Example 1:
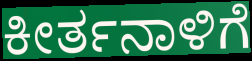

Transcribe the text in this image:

ಕೀರ್ತನಾಳಿಗೆ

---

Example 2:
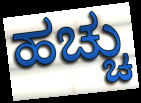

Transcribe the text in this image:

ಹಚ್ಚು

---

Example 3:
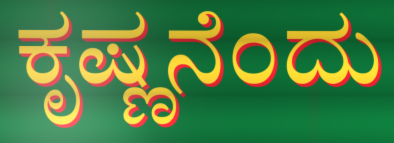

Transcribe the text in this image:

ಕೃಷ್ಣನೆಂದು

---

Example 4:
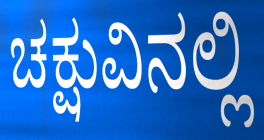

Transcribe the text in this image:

ಚಕ್ಷುವಿನಲ್ಲಿ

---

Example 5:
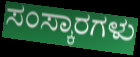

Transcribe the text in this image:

ಸಂಸ್ಕಾರಗಳು